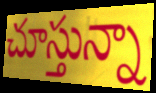
చూస్తున్నా